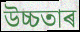
উচ্চতাৰ